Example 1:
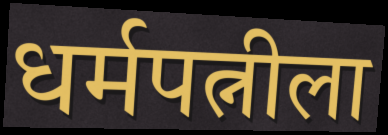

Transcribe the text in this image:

धर्मपत्नीला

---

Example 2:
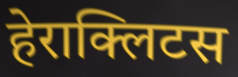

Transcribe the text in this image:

हेराक्लिटस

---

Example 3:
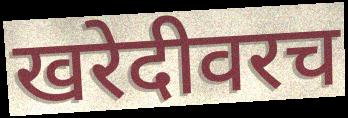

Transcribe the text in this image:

खरेदीवरच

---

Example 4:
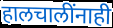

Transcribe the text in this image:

हालचालींनाही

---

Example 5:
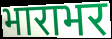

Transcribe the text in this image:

भाराभर